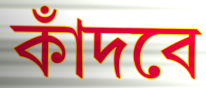
কাঁদবে